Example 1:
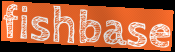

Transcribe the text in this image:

fishbase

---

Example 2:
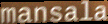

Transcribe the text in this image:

mansala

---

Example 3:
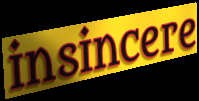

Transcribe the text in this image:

insincere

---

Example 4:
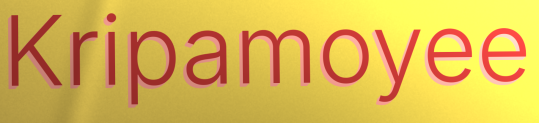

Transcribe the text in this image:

Kripamoyee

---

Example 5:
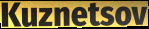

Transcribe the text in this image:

Kuznetsov